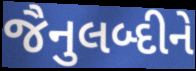
જૈનુલબ્દીને